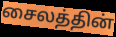
சைலத்தின்